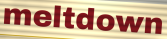
meltdown